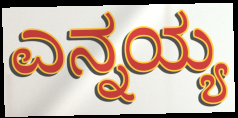
ಎನ್ನಯ್ಯ